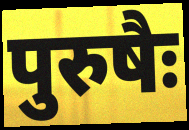
पुरुषैः